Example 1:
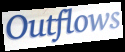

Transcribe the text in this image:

Outflows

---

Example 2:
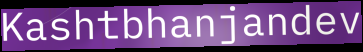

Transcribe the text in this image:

Kashtbhanjandev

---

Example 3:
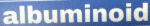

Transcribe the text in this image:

albuminoid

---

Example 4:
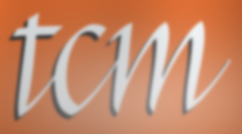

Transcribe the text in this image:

tcm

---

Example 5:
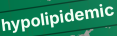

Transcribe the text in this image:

hypolipidemic